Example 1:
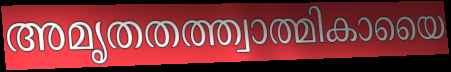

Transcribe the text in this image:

അമൃതതത്ത്വാത്മികായൈ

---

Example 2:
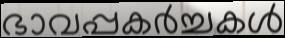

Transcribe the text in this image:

ഭാവപ്പകർച്ചകൾ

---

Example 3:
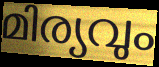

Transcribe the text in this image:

മിര്യവും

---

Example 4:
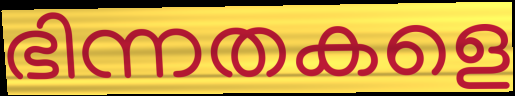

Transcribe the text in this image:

ഭിന്നതകളെ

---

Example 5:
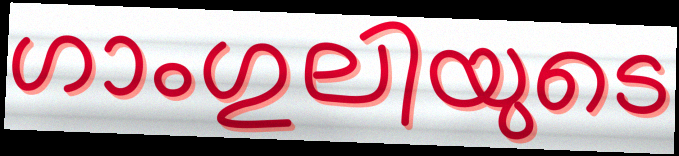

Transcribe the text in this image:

ഗാംഗുലിയുടെ